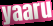
yaaru